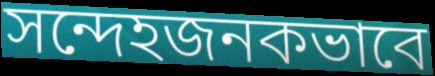
সন্দেহজনকভাবে